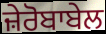
ਜ਼ੇਰੋਬਾਬੇਲ